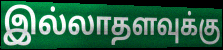
இல்லாதளவுக்கு